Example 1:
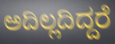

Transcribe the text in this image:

ಅದಿಲ್ಲದಿದ್ದರೆ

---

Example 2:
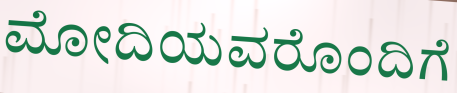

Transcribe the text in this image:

ಮೋದಿಯವರೊಂದಿಗೆ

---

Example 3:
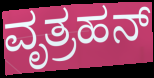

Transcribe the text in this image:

ವೃತ್ರಹನ್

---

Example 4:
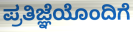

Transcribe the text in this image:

ಪ್ರತಿಜ್ಞೆಯೊಂದಿಗೆ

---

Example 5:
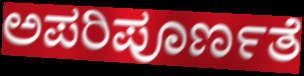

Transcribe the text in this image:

ಅಪರಿಪೂರ್ಣತೆ